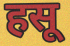
हसू